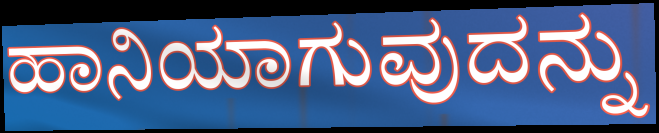
ಹಾನಿಯಾಗುವುದನ್ನು